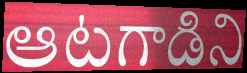
ఆటగాడిని